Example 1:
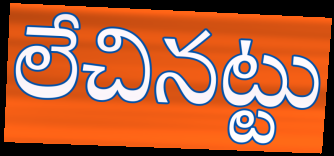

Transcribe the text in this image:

లేచినట్టు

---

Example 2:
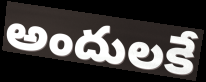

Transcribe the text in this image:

అందులకే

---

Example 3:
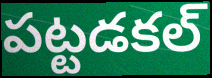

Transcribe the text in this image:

పట్టడకల్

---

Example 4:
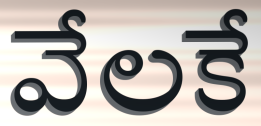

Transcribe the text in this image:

వేలకే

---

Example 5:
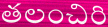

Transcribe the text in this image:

తలంచిరి